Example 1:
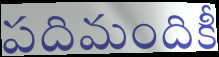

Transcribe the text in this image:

పదిమందికీ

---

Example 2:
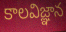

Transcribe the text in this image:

కాలవిజ్ఞాన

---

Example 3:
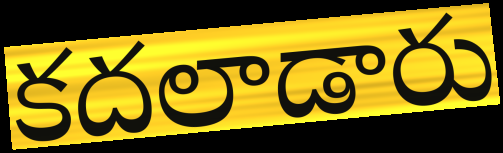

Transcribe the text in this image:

కదలాడారు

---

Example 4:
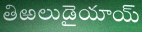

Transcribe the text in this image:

తిఱలుడైయాయ్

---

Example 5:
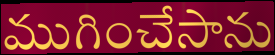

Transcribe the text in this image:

ముగించేసాను